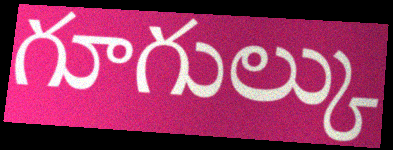
గూగుల్కు